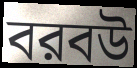
বরবউ